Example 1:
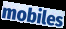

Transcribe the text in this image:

mobiles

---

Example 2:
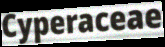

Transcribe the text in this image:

Cyperaceae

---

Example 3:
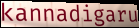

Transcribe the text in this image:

kannadigaru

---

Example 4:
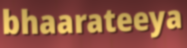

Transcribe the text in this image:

bhaarateeya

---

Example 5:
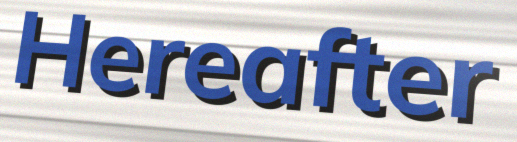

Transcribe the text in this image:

Hereafter